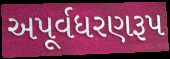
અપૂર્વધરણરૂપ